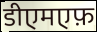
डीएमएफ़